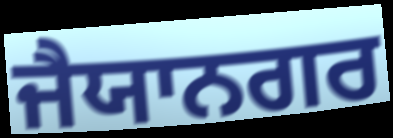
ਜੈਯਾਨਗਰ